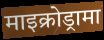
माइक्रोड्रामा